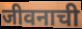
जीवनाची